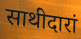
साथीदारां